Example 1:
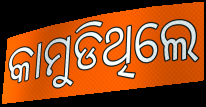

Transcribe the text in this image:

କାମୁଡିଥିଲେ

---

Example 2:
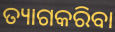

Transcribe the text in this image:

ତ୍ୟାଗକରିବା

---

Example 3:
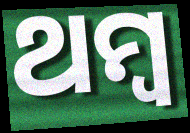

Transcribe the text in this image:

ଥମ୍ବ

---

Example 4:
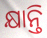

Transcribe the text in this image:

କ୍ଷାନ୍ତି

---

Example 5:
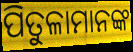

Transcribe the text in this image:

ପିତୁଳାମାନଙ୍କ